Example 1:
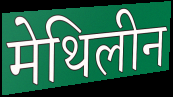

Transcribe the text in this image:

मेथिलीन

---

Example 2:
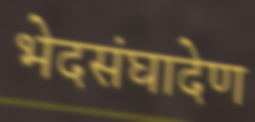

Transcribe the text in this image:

भेदसंघादेण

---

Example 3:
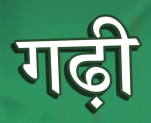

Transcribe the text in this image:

गढ़ी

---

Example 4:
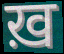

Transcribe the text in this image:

ख़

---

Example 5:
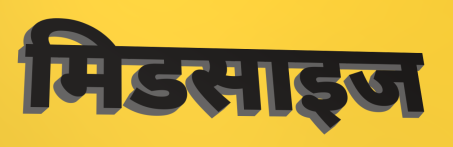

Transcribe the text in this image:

मिडसाइज